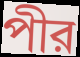
পীর